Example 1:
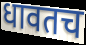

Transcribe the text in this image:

धावतच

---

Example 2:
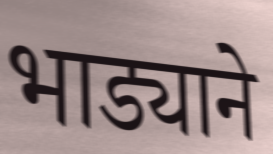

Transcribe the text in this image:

भाड्याने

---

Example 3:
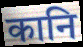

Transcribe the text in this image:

कानि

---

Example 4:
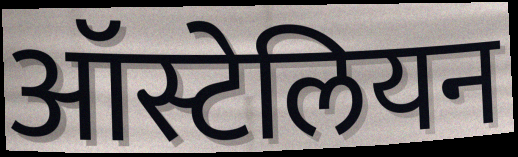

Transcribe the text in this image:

ऑस्टेलियन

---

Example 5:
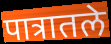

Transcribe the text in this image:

पात्रातले